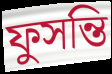
ফুসন্তি